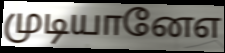
முடியானேஎ